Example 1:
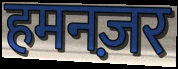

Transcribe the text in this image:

हमनज़र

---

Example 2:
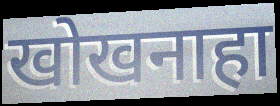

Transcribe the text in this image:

खोखनाहा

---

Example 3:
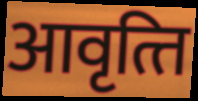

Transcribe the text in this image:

आवृत्‍ति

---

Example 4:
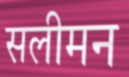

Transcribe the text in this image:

सलीमन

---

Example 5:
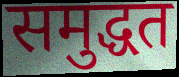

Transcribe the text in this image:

समुद्धत